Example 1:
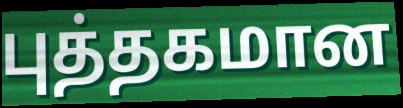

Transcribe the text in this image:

புத்தகமான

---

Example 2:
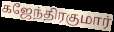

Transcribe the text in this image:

கஜேந்திரகுமார்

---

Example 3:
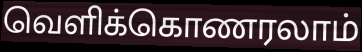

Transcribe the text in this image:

வெளிக்கொணரலாம்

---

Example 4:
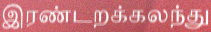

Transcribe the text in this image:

இரண்டறக்கலந்து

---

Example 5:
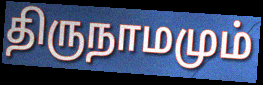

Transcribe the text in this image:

திருநாமமும்